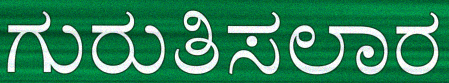
ಗುರುತಿಸಲಾರ